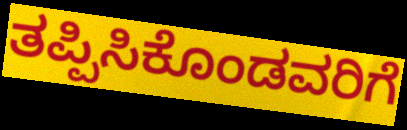
ತಪ್ಪಿಸಿಕೊಂಡವರಿಗೆ